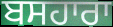
ਬਸਹਾਰਾ